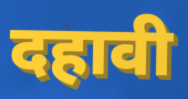
दहावी